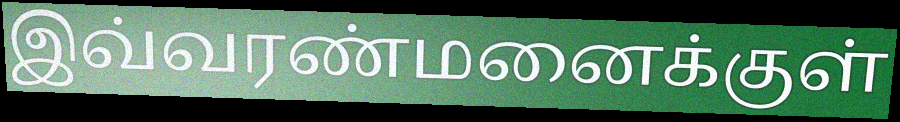
இவ்வரண்மனைக்குள்